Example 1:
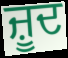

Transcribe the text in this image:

ਜ਼ੂਦ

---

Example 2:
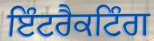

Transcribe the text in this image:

ਇੰਟਰੈਕਟਿੰਗ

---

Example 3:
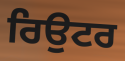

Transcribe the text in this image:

ਰਿਉਟਰ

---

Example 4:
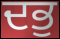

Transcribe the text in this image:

ਦਭੁ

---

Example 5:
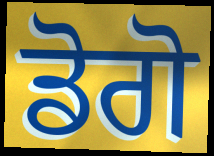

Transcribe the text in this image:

ਡੋਗੋ